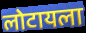
लोटायला